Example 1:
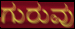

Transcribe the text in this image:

ಗುರುವು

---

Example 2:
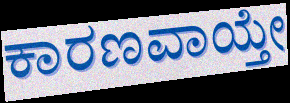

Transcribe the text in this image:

ಕಾರಣವಾಯ್ತೇ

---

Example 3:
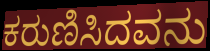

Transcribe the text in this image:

ಕರುಣಿಸಿದವನು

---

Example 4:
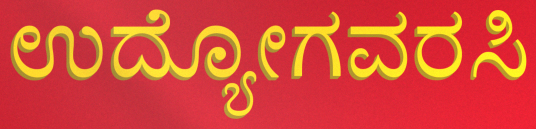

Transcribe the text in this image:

ಉದ್ಯೋಗವರಸಿ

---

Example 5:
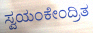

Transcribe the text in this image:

ಸ್ವಯಂಕೇಂದ್ರಿತ